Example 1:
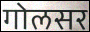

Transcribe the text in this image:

गोलसर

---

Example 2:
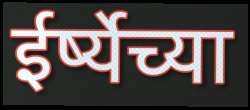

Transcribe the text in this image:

ईर्ष्येच्या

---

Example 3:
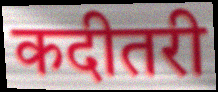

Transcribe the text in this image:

कदीतरी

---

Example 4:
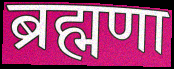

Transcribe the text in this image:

ब्रह्मणा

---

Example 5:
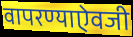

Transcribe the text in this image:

वापरण्याऐवजी